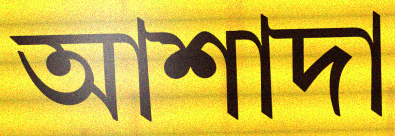
আশাদা